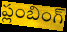
ప్లంబింగ్